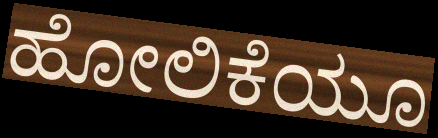
ಹೋಲಿಕೆಯೂ